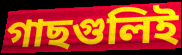
গাছগুলিই